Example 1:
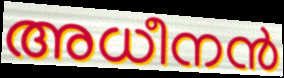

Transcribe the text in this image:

അധീനൻ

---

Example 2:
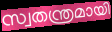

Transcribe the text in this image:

സ്വതന്ത്രമായി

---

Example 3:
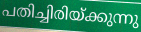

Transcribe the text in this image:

പതിച്ചിരിയ്ക്കുന്നു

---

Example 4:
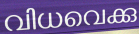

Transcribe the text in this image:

വിധവെക്കു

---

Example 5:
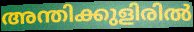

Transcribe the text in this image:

അന്തിക്കുളിരിൽ